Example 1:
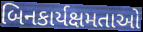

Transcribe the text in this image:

બિનકાર્યક્ષમતાઓ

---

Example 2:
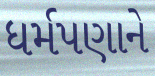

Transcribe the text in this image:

ધર્મપણાને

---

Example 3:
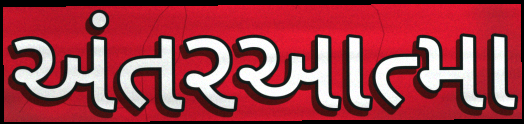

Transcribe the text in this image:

અંતરઆત્મા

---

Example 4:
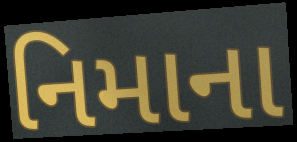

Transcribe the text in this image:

નિમાના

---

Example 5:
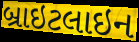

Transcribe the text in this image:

બ્રાઇટલાઇન